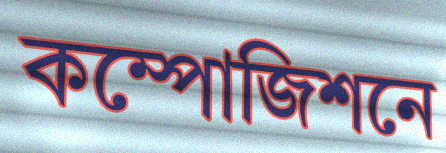
কম্পোজিশনে